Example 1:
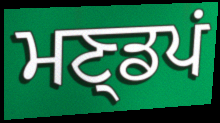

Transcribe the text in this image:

ਮਣ੍ਡਪਂ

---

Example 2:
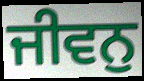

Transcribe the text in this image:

ਜੀਵਨੁ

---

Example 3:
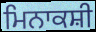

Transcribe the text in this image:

ਮਿਨਾਕਸ਼ੀ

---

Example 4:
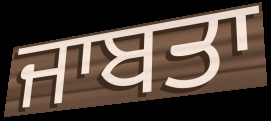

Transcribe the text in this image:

ਜਾਬਤਾ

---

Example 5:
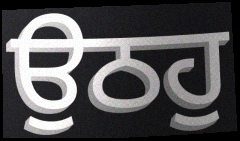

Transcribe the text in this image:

ਉਠਹੁ